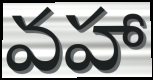
వహా